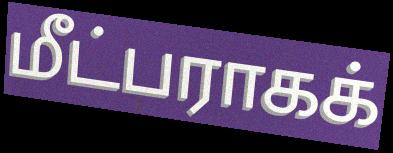
மீட்பராகக்